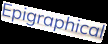
Epigraphical